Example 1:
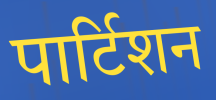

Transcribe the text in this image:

पार्टिशन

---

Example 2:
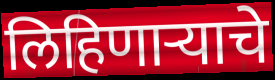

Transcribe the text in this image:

लिहिणाऱ्याचे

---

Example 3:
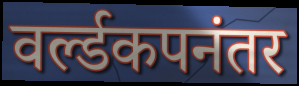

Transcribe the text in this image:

वर्ल्डकपनंतर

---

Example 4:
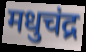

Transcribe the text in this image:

मधुचंद्र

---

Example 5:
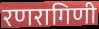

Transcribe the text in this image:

रणरागिणी